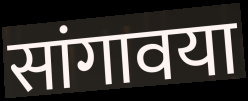
सांगावया